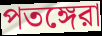
পতঙ্গেরা